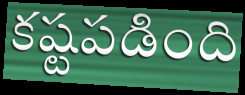
కష్టపడింది